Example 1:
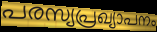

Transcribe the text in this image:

പരസ്യപ്രഖ്യാപനം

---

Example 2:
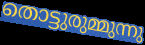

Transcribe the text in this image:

തൊട്ടുരുമ്മുന്നു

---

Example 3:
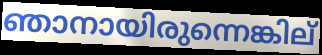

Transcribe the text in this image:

ഞാനായിരുന്നെങ്കില്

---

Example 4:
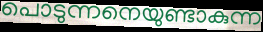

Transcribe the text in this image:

പൊടുന്നനെയുണ്ടാകുന്ന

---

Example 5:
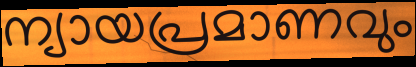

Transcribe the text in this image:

ന്യായപ്രമാണവും